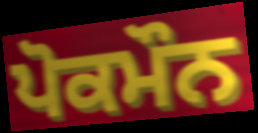
ਪੋਕਮੌਨ